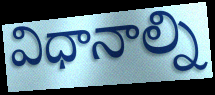
విధానాల్ని